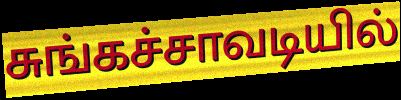
சுங்கச்சாவடியில்